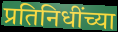
प्रतिनिधींच्या